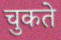
चुकते